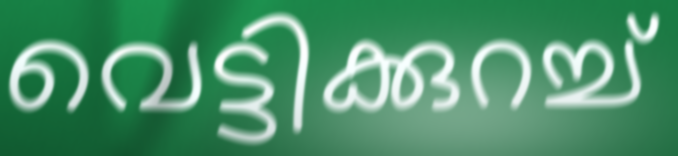
വെട്ടിക്കുറച്ച്